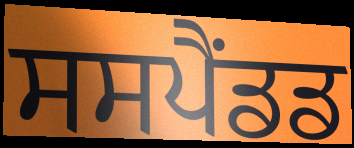
ਸਸਪੈਂਡਡ